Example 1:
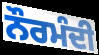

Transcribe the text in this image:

ਨੌਰਮੰਦੀ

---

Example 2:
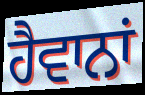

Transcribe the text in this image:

ਹੈਵਾਨਾਂ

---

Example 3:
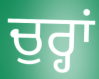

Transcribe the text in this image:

ਚੁਰ੍ਹਾਂ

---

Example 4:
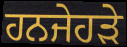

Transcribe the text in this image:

ਹਨਜੇਹੜੇ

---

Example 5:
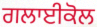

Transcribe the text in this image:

ਗਲਾਈਕੋਲ